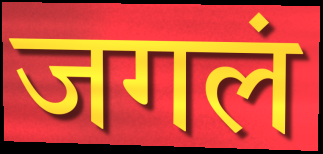
जगलं